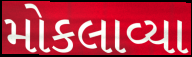
મોકલાવ્યા